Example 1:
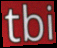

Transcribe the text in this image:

tbi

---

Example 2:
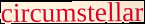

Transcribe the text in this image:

circumstellar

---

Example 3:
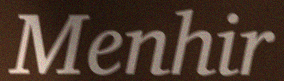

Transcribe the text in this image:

Menhir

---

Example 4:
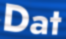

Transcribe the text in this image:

Dat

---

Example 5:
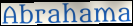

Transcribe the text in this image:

Abrahama